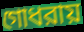
গোধরায়